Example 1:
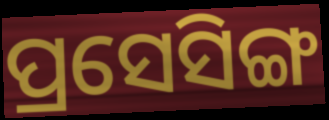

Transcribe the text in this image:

ପ୍ରସେସିଙ୍ଗ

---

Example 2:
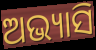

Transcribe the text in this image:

ଅଭ୍ୟାସି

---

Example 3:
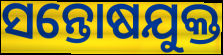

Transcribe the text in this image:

ସନ୍ତୋଷଯୁକ୍ତ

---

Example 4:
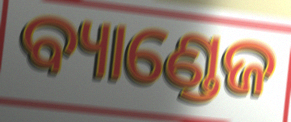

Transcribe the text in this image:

ବ୍ୟାଣ୍ଡେଜ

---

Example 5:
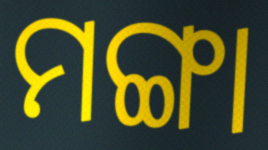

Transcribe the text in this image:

ମଙ୍ଗା